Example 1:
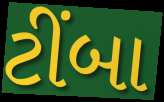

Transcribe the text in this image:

ટીંબા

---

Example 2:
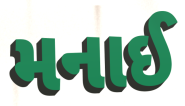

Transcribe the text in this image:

મનાઈ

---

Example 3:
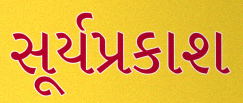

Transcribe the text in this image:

સૂર્યપ્રકાશ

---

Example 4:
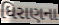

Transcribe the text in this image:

ધિરાણના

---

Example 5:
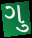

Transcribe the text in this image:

ગુ